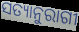
ସତ୍ୟାନୁରାଗୀ